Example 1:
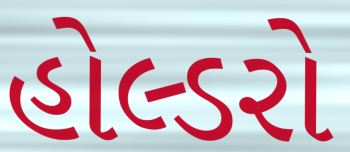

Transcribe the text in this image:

હોલ્ડરો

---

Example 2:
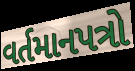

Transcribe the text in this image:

વર્તમાનપત્રો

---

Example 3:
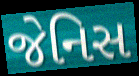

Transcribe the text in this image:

જેનિસ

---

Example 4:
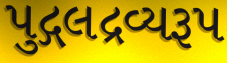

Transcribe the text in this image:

પુદ્ગલદ્રવ્યરૂપ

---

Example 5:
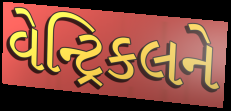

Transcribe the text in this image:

વેન્ટ્રિકલને